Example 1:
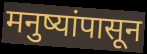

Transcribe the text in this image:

मनुष्यांपासून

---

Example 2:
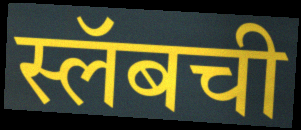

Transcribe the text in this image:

स्लॅबची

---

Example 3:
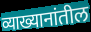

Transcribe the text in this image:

व्याख्यानांतील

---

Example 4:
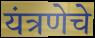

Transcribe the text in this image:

यंत्रणेचे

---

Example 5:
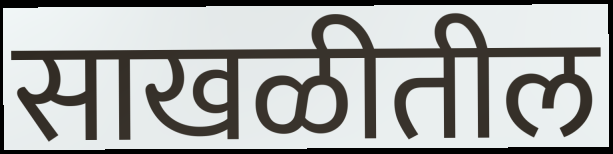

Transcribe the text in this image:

साखळीतील